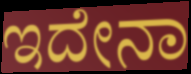
ಇದೇನಾ